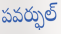
పవర్ఫుల్